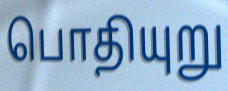
பொதியுறு